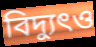
বিদ্যুৎও